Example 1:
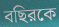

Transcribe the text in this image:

বছিরকে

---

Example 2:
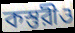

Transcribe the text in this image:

কস্তুরীও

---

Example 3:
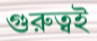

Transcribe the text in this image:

গুরুত্বই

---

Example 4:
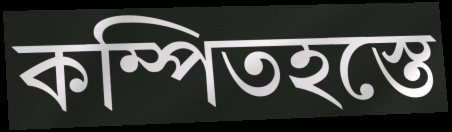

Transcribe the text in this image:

কম্পিতহস্তে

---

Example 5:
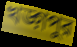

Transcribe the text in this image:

খড়্গপুর